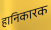
हानिकारक